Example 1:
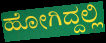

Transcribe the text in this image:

ಹೋಗಿದ್ದಲ್ಲಿ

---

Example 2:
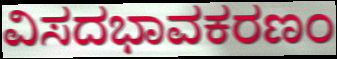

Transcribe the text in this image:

ವಿಸದಭಾವಕರಣಂ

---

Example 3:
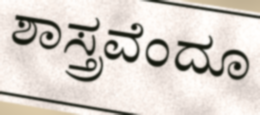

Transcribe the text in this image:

ಶಾಸ್ತ್ರವೆಂದೂ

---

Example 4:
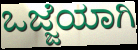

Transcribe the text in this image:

ಒಜ್ಜೆಯಾಗಿ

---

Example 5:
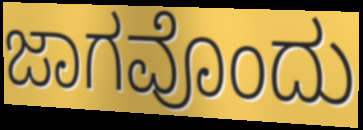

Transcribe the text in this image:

ಜಾಗವೊಂದು